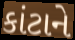
કાંટાને